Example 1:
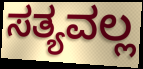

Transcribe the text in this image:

ಸತ್ಯವಲ್ಲ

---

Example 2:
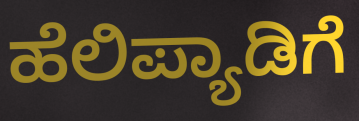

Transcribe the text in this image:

ಹೆಲಿಪ್ಯಾಡಿಗೆ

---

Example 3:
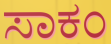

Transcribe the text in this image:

ಸಾಕಂ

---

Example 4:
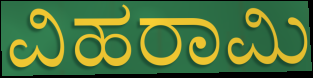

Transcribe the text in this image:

ವಿಹರಾಮಿ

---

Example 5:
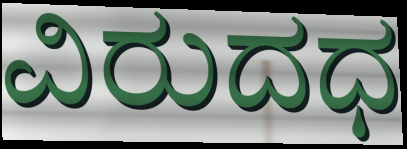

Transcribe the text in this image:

ವಿರುದಧ